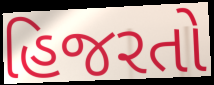
હિજરતો